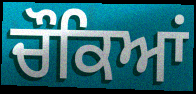
ਚੌਕਿਆਂ